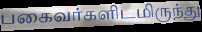
பகைவர்களிடமிருந்து